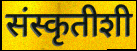
संस्कृतीशी